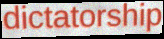
dictatorship